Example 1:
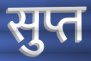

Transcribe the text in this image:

सुप्त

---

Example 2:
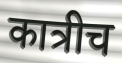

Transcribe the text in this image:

कात्रीच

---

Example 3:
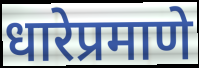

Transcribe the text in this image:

धारेप्रमाणे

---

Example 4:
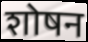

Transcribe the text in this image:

शोषन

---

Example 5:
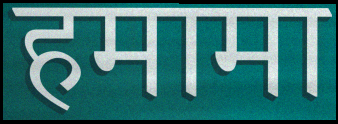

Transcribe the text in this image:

हमामा